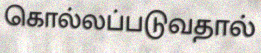
கொல்லப்படுவதால்